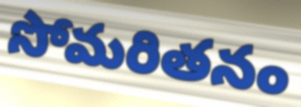
సోమరితనం